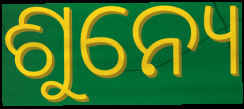
ଶୁନ୍ୟେ